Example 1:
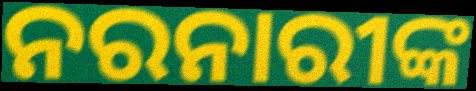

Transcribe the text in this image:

ନରନାରୀଙ୍କ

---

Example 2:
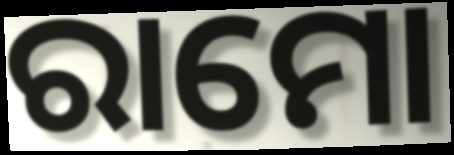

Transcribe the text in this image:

ରାମୋ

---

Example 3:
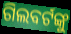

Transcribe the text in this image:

ଗିଲବର୍ଟଙ୍କୁ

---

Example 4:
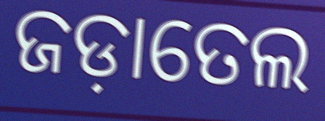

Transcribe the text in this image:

ଜଡ଼ାତେଲ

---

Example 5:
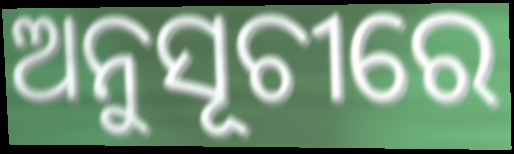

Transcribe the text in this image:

ଅନୁସୂଚୀରେ